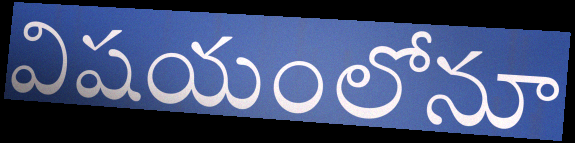
విషయంలోనూ